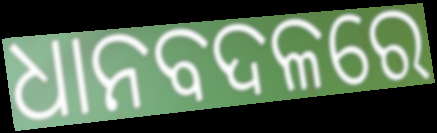
ଧାନବଦଳରେ